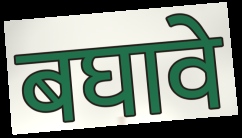
बघावे